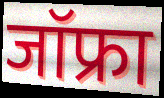
जॉफ्रा